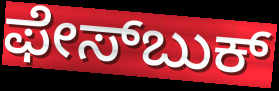
ಫೇಸ್‍ಬುಕ್